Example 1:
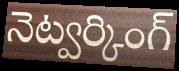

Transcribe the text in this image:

నెట్వర్కింగ్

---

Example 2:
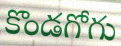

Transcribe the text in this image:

కొండగోగు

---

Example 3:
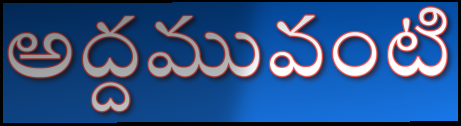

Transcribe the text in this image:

అద్దమువంటి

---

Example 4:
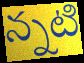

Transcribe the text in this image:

న్నటి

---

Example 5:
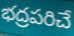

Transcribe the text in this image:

భద్రపరిచే